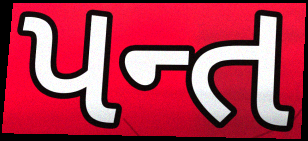
પન્ત